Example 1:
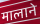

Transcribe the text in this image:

मालाने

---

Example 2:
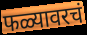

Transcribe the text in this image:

फळ्यावरचं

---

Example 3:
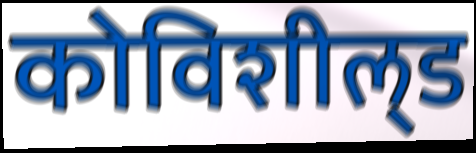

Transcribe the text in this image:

कोविशील्ड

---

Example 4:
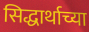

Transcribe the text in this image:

सिद्धार्थाच्या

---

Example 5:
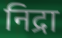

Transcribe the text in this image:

निद्रा